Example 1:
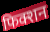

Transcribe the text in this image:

फिक्शन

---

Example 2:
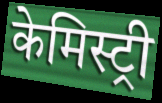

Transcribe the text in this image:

केमिस्ट्री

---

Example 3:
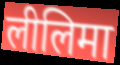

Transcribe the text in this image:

लीलिमा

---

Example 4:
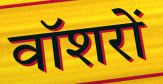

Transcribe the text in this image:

वॉशरों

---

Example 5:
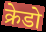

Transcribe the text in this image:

क्रेडो